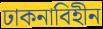
ঢাকনাবিহীন